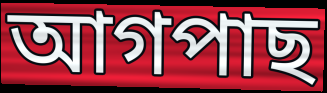
আগপাছ